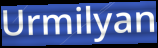
Urmilyan